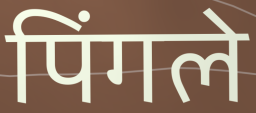
पिंगले